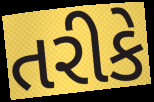
તરીકે